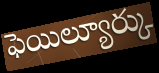
ఫెయిల్యూర్కు